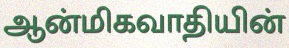
ஆன்மிகவாதியின்